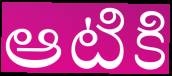
ఆటికి